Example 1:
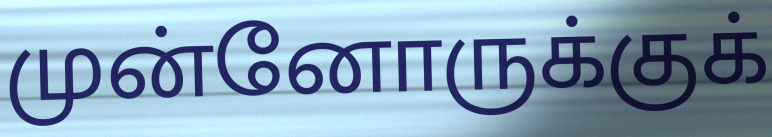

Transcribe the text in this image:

முன்னோருக்குக்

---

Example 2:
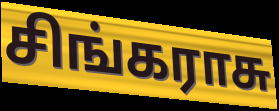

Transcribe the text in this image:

சிங்கராசு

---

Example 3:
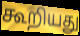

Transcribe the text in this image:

கூறியது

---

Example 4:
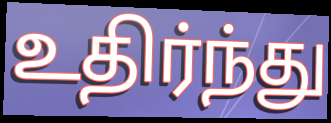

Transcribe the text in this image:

உதிர்ந்து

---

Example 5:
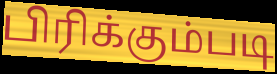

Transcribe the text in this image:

பிரிக்கும்படி